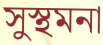
সুস্থমনা